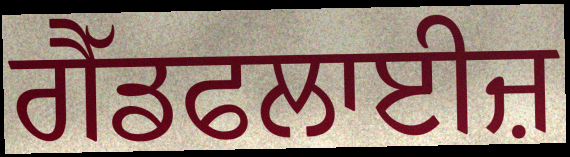
ਗੈੱਡਫਲਾਈਜ਼